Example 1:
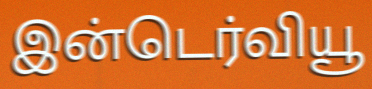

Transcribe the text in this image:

இன்டெர்வியூ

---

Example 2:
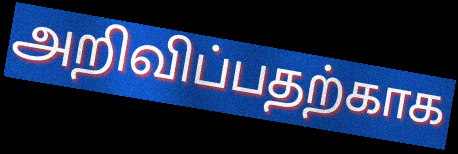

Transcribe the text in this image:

அறிவிப்பதற்காக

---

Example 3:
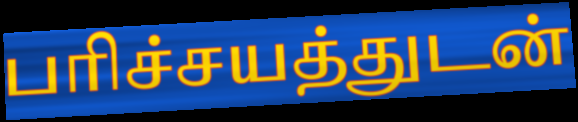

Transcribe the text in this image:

பரிச்சயத்துடன்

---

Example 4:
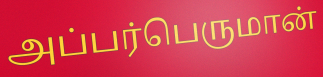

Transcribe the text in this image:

அப்பர்பெருமான்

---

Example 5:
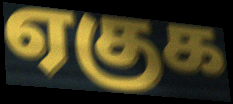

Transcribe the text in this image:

ஏகுக